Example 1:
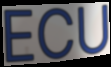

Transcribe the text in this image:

ECU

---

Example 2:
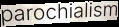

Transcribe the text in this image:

parochialism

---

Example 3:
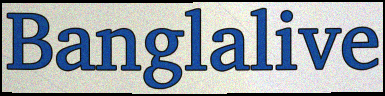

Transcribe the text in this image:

Banglalive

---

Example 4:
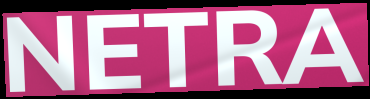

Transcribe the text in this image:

NETRA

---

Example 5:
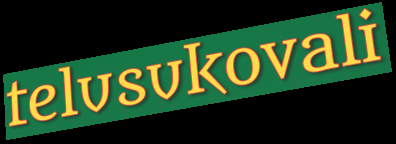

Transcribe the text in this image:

telusukovali